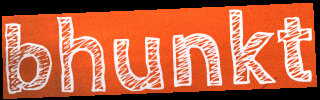
bhunkt